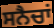
ਸਨੈਚਾਂ